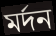
মর্দন